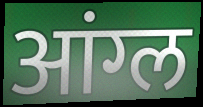
आंग्ल